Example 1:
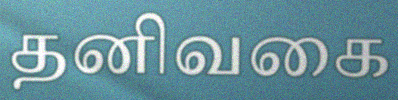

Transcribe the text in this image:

தனிவகை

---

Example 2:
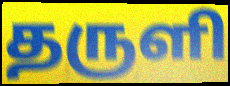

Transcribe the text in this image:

தருளி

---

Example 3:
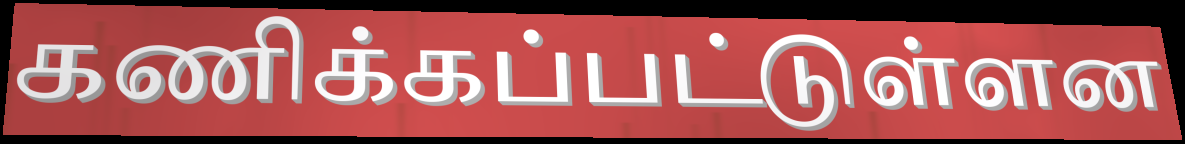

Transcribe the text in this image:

கணிக்கப்பட்டுள்ளன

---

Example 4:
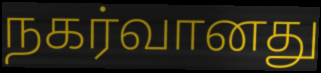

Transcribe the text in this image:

நகர்வானது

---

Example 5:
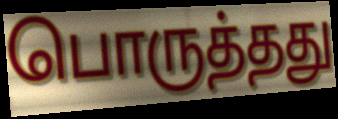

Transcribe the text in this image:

பொருத்தது